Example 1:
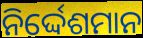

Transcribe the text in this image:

ନିର୍ଦ୍ଦେଶମାନ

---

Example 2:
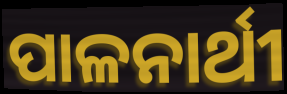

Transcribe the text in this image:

ପାଳନାର୍ଥୀ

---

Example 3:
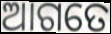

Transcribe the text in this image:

ଆଗତେ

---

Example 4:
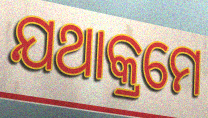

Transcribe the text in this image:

ଯଥାକ୍ରମେ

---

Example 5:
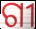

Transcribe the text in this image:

ଗୀ